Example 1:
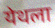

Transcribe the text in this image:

येथला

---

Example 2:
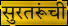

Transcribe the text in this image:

सुरतरूंची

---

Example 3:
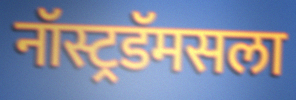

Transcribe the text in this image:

नॉस्ट्रडॅमसला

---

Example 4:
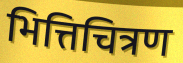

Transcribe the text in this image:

भित्तिचित्रण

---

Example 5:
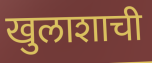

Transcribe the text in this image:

खुलाशाची